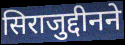
सिराजुद्दीनने